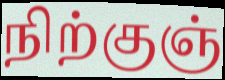
நிற்குஞ்